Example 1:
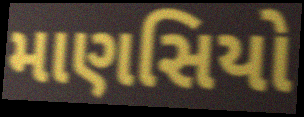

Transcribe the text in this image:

માણસિયો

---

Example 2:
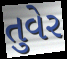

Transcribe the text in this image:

તુવેર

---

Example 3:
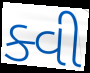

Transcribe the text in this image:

ક્વી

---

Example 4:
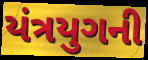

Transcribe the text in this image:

યંત્રયુગની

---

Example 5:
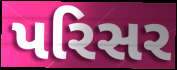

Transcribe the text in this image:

પરિસર